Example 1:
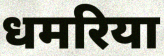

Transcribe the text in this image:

धमरिया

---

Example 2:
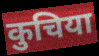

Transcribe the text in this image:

कुचिया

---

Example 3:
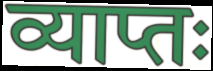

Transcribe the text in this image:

व्याप्तः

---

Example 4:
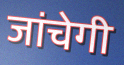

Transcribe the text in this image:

जांचेगी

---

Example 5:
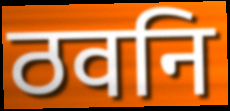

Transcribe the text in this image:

ठवनि